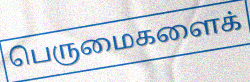
பெருமைகளைக்